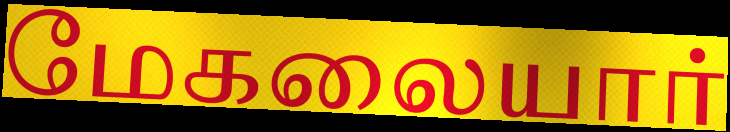
மேகலையார்